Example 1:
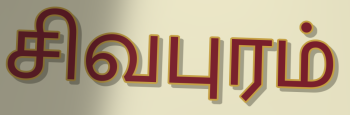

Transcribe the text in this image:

சிவபுரம்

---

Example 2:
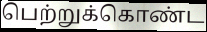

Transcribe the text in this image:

பெற்றுக்கொண்ட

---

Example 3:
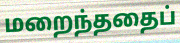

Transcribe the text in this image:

மறைந்ததைப்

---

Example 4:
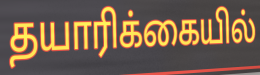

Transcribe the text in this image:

தயாரிக்கையில்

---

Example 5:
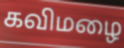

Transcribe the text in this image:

கவிமழை